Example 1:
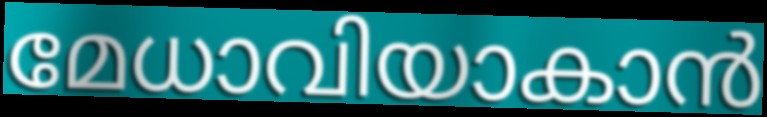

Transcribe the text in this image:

മേധാവിയാകാൻ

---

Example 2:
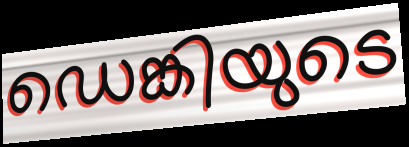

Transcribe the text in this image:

ഡെങ്കിയുടെ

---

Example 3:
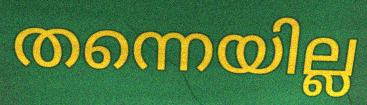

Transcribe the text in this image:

തന്നെയില്ല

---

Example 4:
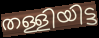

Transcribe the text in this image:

തള്ളിയിട്ട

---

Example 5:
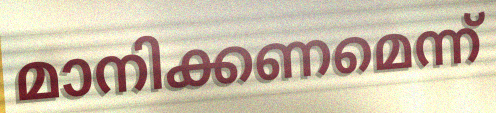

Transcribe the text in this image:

മാനിക്കണമെന്ന്